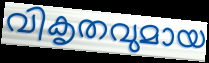
വികൃതവുമായ